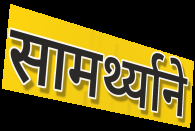
सामर्थ्याने